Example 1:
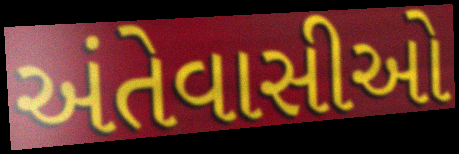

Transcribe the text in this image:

અંતેવાસીઓ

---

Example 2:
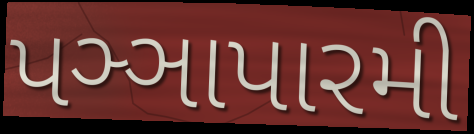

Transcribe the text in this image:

પઞ્ઞાપારમી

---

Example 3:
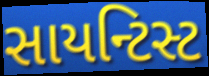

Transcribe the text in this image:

સાયન્ટિસ્ટ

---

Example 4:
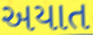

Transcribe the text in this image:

અયાત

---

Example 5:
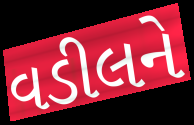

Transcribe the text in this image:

વડીલને